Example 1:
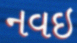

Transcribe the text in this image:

નવઇ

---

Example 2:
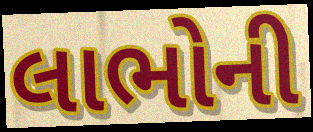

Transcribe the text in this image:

લાભોની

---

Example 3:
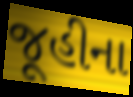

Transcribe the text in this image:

જૂહીના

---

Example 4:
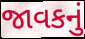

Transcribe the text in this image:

જાવકનું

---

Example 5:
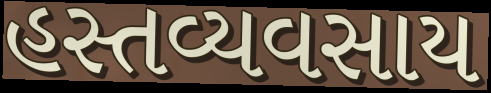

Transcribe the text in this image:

હસ્તવ્યવસાય